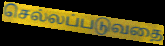
செல்லப்படுவதை